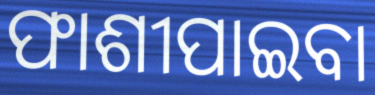
ଫାଶୀପାଇବା